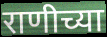
राणीच्या